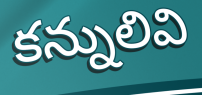
కన్నులివి